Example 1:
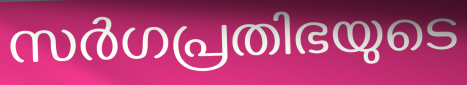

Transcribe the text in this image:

സർഗപ്രതിഭയുടെ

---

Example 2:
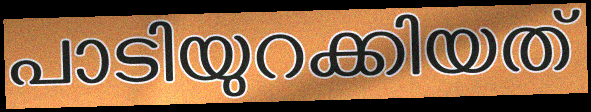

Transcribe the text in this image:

പാടിയുറക്കിയത്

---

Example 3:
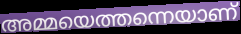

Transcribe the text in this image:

അമ്മയെത്തന്നെയാണ്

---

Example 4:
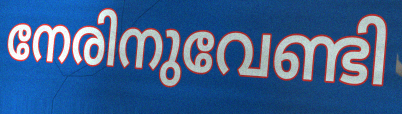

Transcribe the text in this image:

നേരിനുവേണ്ടി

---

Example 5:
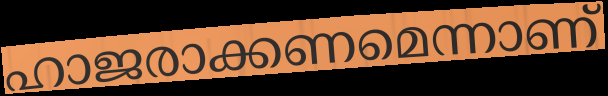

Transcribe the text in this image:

ഹാജരാക്കണമെന്നാണ്